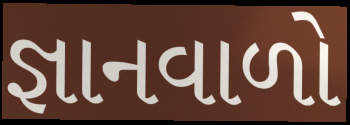
જ્ઞાનવાળો